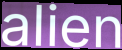
alien